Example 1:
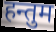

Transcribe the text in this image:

हन्तुम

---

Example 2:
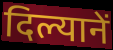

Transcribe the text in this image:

दिल्यानें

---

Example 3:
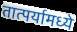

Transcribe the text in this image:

तात्पर्यामध्ये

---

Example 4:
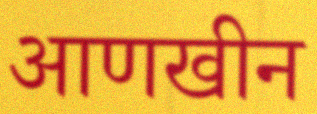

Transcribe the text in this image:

आणखीन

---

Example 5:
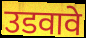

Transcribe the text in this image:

उडवावे